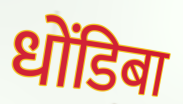
धोंडिबा